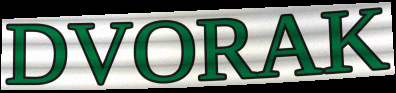
DVORAK